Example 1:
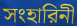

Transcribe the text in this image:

সংহারিনী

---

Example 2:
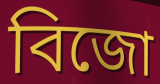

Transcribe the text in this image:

বিজো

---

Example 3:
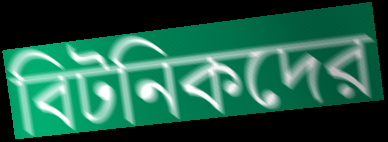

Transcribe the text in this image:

বিটনিকদের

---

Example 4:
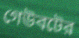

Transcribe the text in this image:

গেউবটের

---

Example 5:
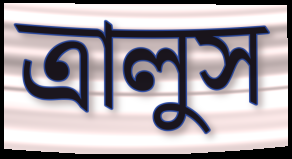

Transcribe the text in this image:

ত্রালুস